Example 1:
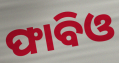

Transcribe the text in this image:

ଫାବିଓ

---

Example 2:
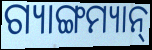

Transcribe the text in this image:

ଗ୍ୟାଙ୍ଗମ୍ୟାନ୍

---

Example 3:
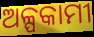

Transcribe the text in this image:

ଅଳ୍ପକାମୀ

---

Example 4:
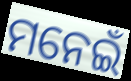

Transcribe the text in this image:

ମନେଇଁ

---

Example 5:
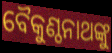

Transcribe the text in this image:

ବୈକୁଣ୍ଠନାଥଙ୍କୁ